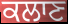
ਕਲਾਣ